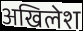
अखिलेश